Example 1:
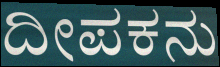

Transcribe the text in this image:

ದೀಪಕನು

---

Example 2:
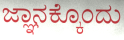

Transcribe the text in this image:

ಜ್ಞಾನಕ್ಕೊಂದು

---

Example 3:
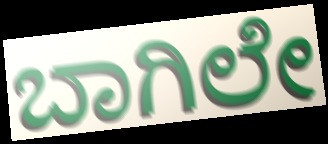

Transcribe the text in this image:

ಬಾಗಿಲೇ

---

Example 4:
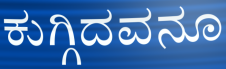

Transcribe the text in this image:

ಕುಗ್ಗಿದವನೂ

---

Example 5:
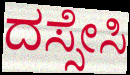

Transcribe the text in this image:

ದಸ್ಸೇಸಿ